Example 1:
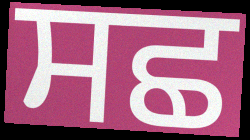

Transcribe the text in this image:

ਸਛ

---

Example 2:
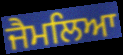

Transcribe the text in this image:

ਜੈਮਲਿਆ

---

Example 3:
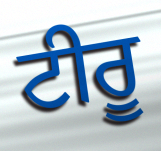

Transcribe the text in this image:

ਟੀਰੂ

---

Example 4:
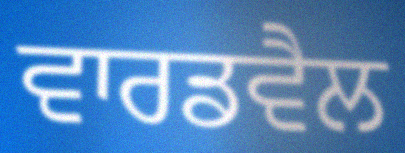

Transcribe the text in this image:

ਵਾਰਡਵੈਲ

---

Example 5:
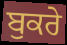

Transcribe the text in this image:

ਬੁਕਰੇ